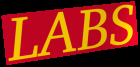
LABS